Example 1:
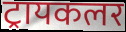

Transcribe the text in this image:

ट्रायकलर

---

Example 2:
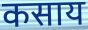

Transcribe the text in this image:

कसाय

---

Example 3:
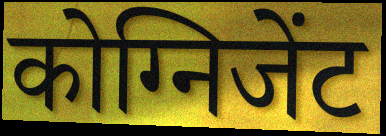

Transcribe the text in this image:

कोग्निजेंट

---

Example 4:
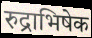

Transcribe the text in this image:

रुद्राभिषेक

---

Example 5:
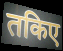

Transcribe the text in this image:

तकिए